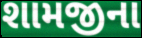
શામજીના